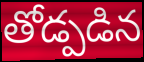
తోడ్పడిన